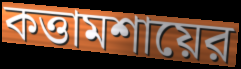
কত্তামশায়ের